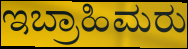
ಇಬ್ರಾಹಿಮರು